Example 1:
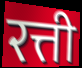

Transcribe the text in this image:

रत्ती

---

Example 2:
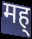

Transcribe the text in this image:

मह्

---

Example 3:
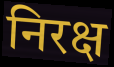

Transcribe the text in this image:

निरक्ष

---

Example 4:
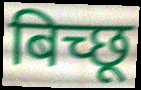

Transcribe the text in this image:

बिच्छू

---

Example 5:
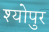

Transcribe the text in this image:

श्योपुर